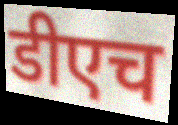
डीएच